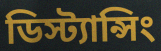
ডিস্ট্যান্সিং